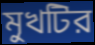
মুখটির